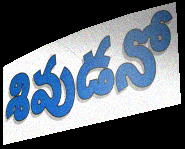
శివుడనో